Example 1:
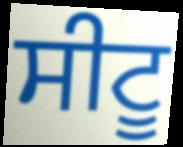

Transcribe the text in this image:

ਸੀਟੂ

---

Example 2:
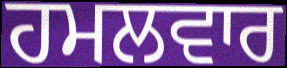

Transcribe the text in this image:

ਹਮਲਵਾਰ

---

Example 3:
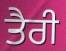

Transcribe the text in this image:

ਤੈਰੀ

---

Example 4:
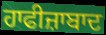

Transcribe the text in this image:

ਹਾਫੀਜ਼ਾਬਾਦ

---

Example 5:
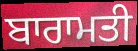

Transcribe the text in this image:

ਬਾਰਾਮਤੀ